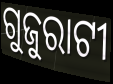
ଗୁଜୁରାଟୀ